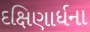
દક્ષિણાર્ધના